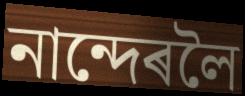
নান্দেৰলৈ